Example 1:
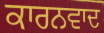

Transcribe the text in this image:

ਕਾਰਨਵਾਦ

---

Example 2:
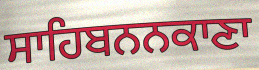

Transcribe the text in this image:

ਸਾਹਿਬਨਨਕਾਣਾ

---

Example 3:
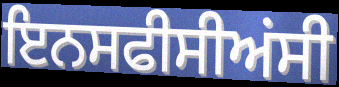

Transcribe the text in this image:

ਇਨਸਫੀਸੀਅਂਸੀ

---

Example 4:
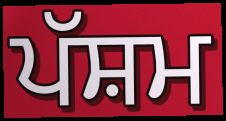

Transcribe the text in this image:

ਪੱਸ਼ਮ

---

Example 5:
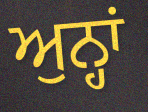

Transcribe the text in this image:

ਅੁਨ੍ਹਾਂ